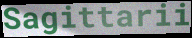
Sagittarii